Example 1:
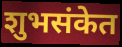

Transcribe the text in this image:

शुभसंकेत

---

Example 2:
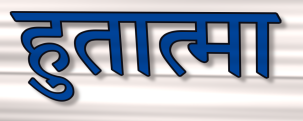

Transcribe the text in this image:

हुतात्मा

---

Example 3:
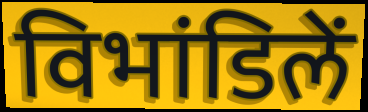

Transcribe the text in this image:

विभांडिलें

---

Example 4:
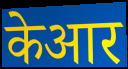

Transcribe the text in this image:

केआर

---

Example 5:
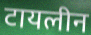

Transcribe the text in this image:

टायलीन